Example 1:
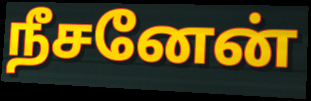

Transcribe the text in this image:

நீசனேன்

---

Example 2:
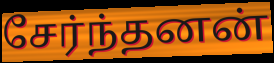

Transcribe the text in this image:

சேர்ந்தனன்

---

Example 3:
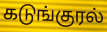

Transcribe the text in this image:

கடுங்குரல்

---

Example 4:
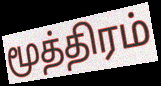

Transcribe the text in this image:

மூத்திரம்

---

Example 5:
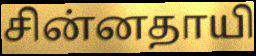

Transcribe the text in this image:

சின்னதாயி